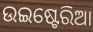
ଉଇଷ୍ଟେରିଆ